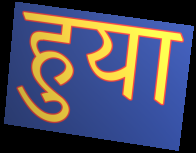
हुया